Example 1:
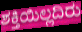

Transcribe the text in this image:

ಶಕ್ತಿಯಿಲ್ಲದಿರು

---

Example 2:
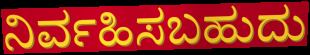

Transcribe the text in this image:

ನಿರ್ವಹಿಸಬಹುದು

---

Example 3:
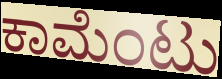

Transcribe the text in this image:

ಕಾಮೆಂಟು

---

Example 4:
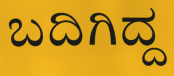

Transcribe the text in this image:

ಬದಿಗಿದ್ದ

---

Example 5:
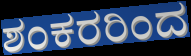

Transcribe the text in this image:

ಶಂಕರರಿಂದ